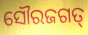
ସୌରଜଗତ୍